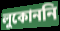
লুকোননি